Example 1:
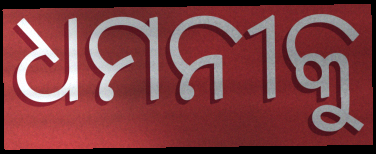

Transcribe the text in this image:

ଧମନୀକୁ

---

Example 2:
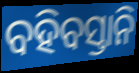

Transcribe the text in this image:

ବହିବସ୍ତାନି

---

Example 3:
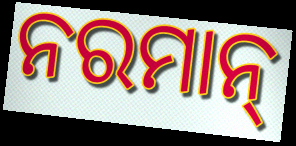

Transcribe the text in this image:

ନରମାନ୍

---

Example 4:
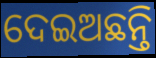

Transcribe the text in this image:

ଦେଇଅଛନ୍ତି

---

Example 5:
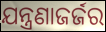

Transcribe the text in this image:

ଯନ୍ତ୍ରଣାଜର୍ଜର